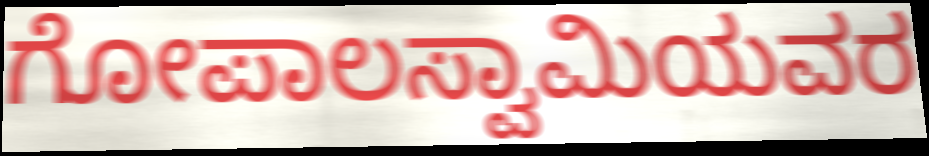
ಗೋಪಾಲಸ್ವಾಮಿಯವರ